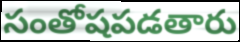
సంతోషపడతారు